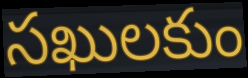
సఖులకుం